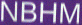
NBHM